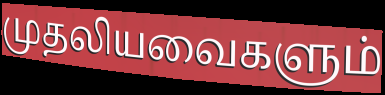
முதலியவைகளும்